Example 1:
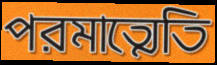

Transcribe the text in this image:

পরমাত্মেতি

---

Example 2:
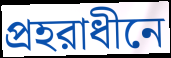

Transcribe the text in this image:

প্রহরাধীনে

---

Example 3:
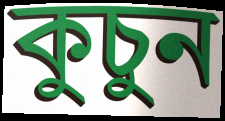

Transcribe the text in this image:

কুচুন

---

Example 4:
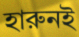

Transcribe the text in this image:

হারুনই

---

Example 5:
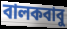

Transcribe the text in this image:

বালকবাবু